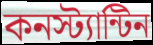
কনস্ট্যান্টিন